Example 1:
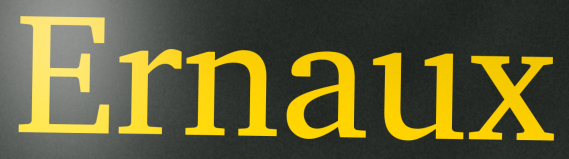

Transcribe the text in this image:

Ernaux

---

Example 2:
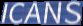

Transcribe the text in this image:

ICANS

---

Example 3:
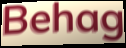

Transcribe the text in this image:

Behag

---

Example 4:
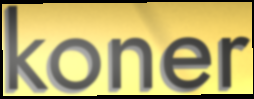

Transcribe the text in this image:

koner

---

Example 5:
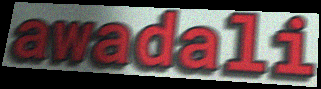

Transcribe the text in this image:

awadali